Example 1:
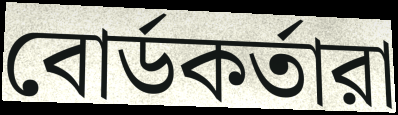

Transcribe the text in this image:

বোর্ডকর্তারা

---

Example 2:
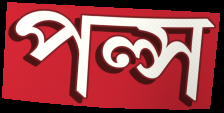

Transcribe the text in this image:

পল্স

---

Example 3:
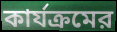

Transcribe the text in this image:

কার্যক্রমের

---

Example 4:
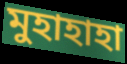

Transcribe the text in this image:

মুহাহাহা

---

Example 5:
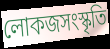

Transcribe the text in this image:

লোকজসংস্কৃতি